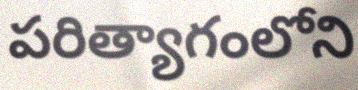
పరిత్యాగంలోని